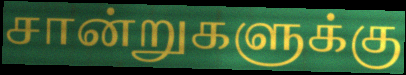
சான்றுகளுக்கு